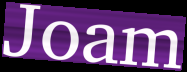
Joam